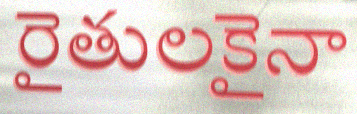
రైతులకైనా